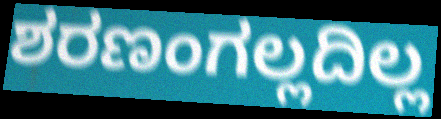
ಶರಣಂಗಲ್ಲದಿಲ್ಲ